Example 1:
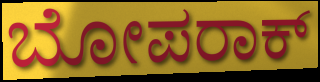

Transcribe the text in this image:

ಬೋಪರಾಕ್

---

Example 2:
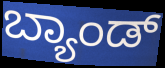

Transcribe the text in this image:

ಬ್ಯಾಂಡ್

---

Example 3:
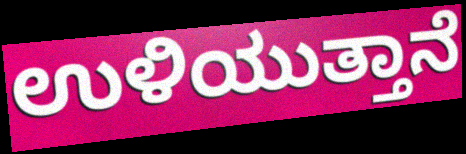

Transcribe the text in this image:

ಉಳಿಯುತ್ತಾನೆ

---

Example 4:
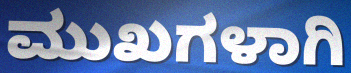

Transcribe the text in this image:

ಮುಖಗಳಾಗಿ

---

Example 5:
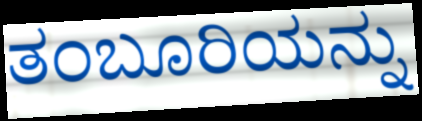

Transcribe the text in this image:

ತಂಬೂರಿಯನ್ನು